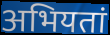
अभियतां